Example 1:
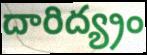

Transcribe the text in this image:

దారిద్య్రం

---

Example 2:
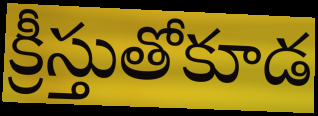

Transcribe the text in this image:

క్రీస్తుతోకూడ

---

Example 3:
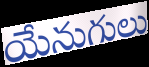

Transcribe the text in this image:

యేనుగులు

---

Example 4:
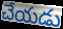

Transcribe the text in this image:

చేయడు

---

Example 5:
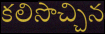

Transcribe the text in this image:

కలిసొచ్చిన